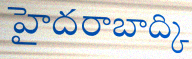
హైదరాబాద్కి